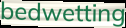
bedwetting